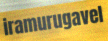
iramurugavel